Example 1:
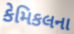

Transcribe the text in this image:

કેમિકલના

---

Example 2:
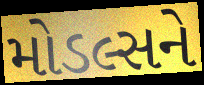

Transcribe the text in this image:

મોડલ્સને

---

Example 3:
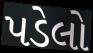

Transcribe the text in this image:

પડેલો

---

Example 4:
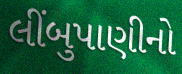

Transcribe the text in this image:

લીંબુપાણીનો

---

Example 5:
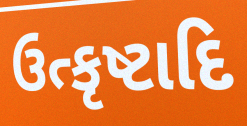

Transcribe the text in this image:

ઉત્કૃષ્ટાદિ